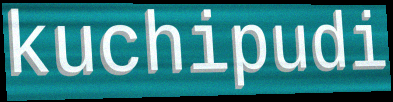
kuchipudi